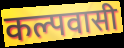
कल्पवासी